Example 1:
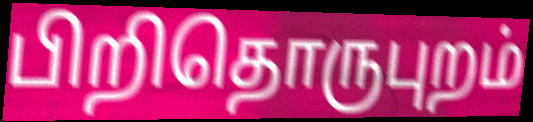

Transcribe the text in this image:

பிறிதொருபுறம்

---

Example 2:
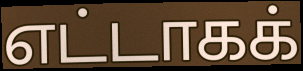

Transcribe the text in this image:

எட்டாகக்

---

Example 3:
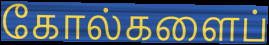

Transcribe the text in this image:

கோல்களைப்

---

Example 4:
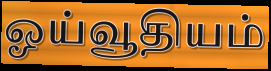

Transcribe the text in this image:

ஓய்வூதியம்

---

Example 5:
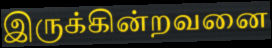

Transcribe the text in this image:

இருக்கின்றவனை